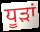
ਧੂਡ਼ਾਂ